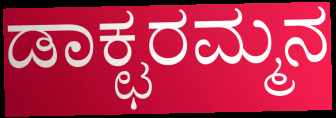
ಡಾಕ್ಟರಮ್ಮನ